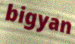
bigyan